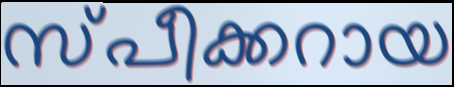
സ്പീക്കറായ